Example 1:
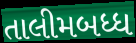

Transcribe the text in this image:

તાલીમબધ્ધ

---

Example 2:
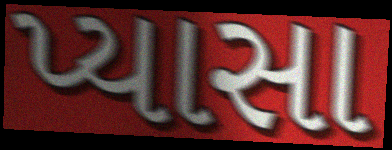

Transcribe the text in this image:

પ્યાસા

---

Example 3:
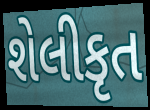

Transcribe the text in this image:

શેલીકૃત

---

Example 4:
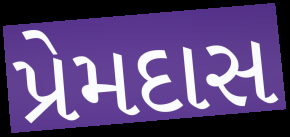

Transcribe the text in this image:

પ્રેમદાસ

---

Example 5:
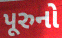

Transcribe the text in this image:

પૂરુનો